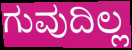
ಗುವುದಿಲ್ಲ